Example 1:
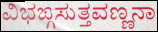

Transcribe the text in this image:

ವಿಭಙ್ಗಸುತ್ತವಣ್ಣನಾ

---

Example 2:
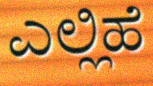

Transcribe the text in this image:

ಎಲ್ಲಿಹೆ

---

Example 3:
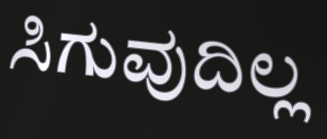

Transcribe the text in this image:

ಸಿಗುವುದಿಲ್ಲ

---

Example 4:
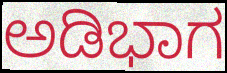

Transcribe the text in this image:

ಅಡಿಭಾಗ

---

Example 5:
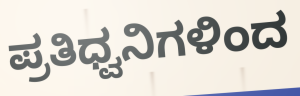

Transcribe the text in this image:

ಪ್ರತಿಧ್ವನಿಗಳಿಂದ